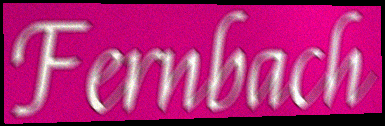
Fernbach